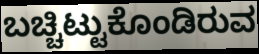
ಬಚ್ಚಿಟ್ಟುಕೊಂಡಿರುವ